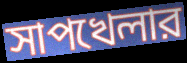
সাপখেলার